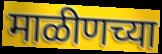
माळीणच्या